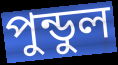
পুন্ডুল